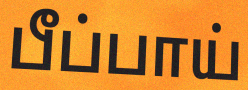
பீப்பாய்